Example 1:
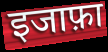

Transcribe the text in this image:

इजाफ़ा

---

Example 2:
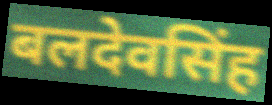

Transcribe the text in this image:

बलदेवसिंह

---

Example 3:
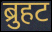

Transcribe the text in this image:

ब्रुहट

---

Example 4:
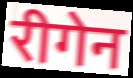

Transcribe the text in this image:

रीगेन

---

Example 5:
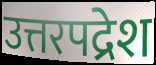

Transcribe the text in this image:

उत्तरपद्रेश